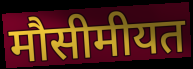
मौसीमीयत